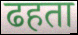
ढहता